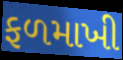
ફળમાખી